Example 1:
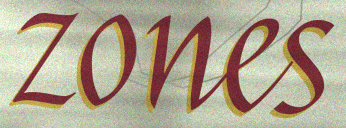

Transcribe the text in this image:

zones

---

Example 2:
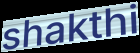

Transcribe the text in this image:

shakthi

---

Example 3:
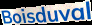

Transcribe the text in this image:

Boisduval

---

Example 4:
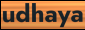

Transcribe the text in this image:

udhaya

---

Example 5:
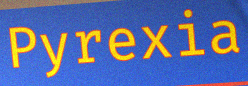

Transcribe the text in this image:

Pyrexia